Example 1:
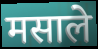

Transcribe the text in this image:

मसाले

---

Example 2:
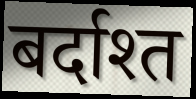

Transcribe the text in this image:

बर्दाश्त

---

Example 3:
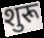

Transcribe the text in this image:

शुरू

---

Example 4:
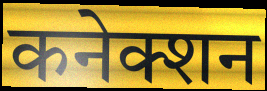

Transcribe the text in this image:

कनेक्शन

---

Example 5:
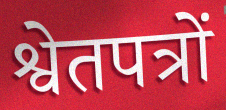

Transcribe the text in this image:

श्वेतपत्रों